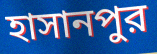
হাসানপুর